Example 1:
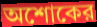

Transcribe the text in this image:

অশোকের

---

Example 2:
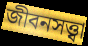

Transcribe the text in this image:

জীবনসত্ত্বা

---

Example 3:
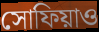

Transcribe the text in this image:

সোফিয়াও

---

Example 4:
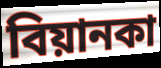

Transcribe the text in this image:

বিয়ানকা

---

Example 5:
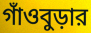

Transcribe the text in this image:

গাঁওবুড়ার